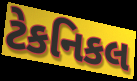
ટેકનિકલ